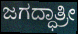
ಜಗದ್ಧಾತ್ರೀ